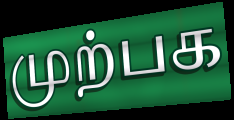
முற்பக